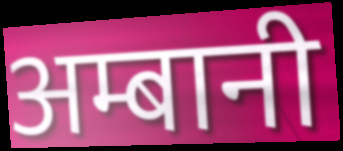
अम्‍बानी